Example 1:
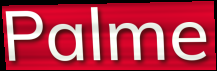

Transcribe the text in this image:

Palme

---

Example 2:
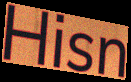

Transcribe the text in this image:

Hisn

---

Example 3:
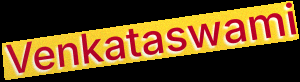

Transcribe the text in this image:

Venkataswami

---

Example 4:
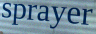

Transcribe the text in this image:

sprayer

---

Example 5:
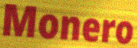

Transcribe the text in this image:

Monero